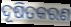
ଦୂଷିତକରଣ